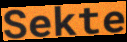
Sekte